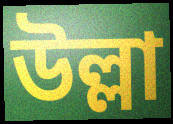
উল্লা